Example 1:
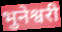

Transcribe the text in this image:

भुनेश्वरी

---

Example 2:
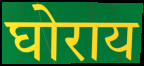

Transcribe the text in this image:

घोराय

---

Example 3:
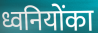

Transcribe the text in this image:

ध्वनियोंका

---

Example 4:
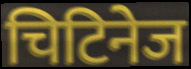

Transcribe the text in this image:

चिटिनेज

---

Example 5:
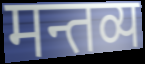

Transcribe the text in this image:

मन्तव्य